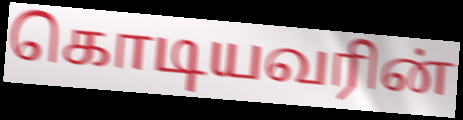
கொடியவரின்